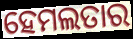
ହେମଲତାର